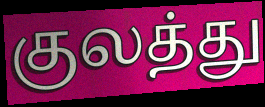
குலத்து